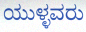
ಯುಳ್ಳವರು